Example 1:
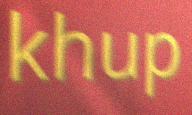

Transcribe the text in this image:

khup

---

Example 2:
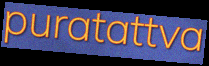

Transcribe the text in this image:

puratattva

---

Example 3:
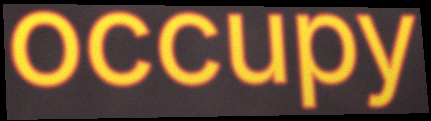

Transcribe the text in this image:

occupy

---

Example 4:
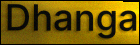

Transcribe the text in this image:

Dhanga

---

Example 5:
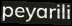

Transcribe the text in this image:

peyarili